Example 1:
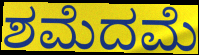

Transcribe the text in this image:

ಶಮೆದಮೆ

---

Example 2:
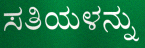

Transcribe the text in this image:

ಸತಿಯಳನ್ನು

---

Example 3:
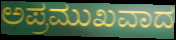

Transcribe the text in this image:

ಅಪ್ರಮುಖವಾದ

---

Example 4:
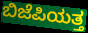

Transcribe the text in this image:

ಬಿಜೆಪಿಯತ್ತ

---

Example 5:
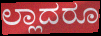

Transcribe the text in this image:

ಲ್ಲಾದರೂ